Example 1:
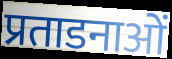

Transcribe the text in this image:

प्रताडनाओं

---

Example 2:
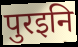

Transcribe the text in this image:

पुरइनि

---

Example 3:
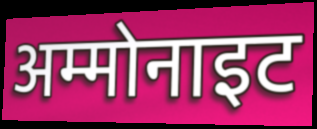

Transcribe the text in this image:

अम्मोनाइट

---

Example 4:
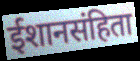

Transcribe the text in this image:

ईशानसंहिता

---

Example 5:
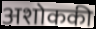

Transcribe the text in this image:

अशोककी